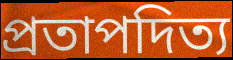
প্ৰতাপদিত্য